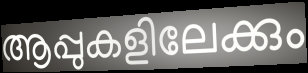
ആപ്പുകളിലേക്കും